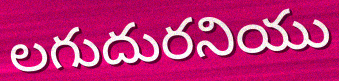
లగుదురనియు